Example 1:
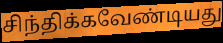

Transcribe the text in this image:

சிந்திக்கவேண்டியது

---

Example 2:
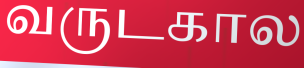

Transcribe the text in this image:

வருடகால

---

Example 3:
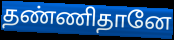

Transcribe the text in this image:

தண்ணிதானே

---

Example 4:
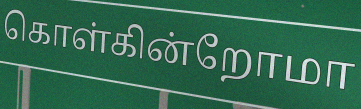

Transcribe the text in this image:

கொள்கின்றோமா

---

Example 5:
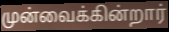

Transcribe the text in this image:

முன்வைக்கின்றார்